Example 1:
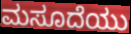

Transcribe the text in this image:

ಮಸೂದೆಯು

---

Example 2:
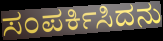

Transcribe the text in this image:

ಸಂಪರ್ಕಿಸಿದನು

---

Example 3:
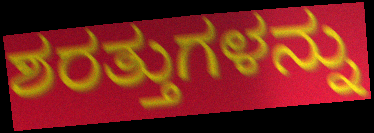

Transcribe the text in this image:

ಶರತ್ತುಗಳನ್ನು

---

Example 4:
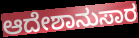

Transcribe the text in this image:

ಆದೇಶಾನುಸಾರ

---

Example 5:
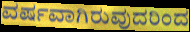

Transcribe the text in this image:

ವರ್ಷವಾಗಿರುವುದರಿಂದ